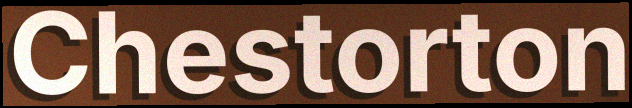
Chestorton